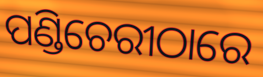
ପଣ୍ଡିଚେରୀଠାରେ